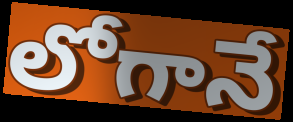
లోగానే